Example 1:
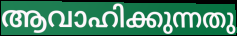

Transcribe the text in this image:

ആവാഹിക്കുന്നതു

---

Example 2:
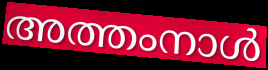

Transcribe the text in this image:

അത്തംനാൾ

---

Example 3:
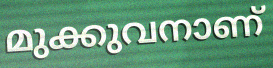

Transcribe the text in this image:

മുക്കുവനാണ്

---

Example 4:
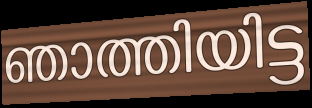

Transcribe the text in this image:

ഞാത്തിയിട്ട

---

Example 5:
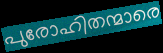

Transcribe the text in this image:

പുരോഹിതന്മാരെ